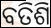
ବତିଶି